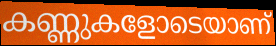
കണ്ണുകളോടെയാണ്